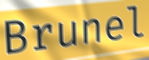
Brunel